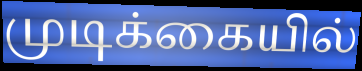
முடிக்கையில்